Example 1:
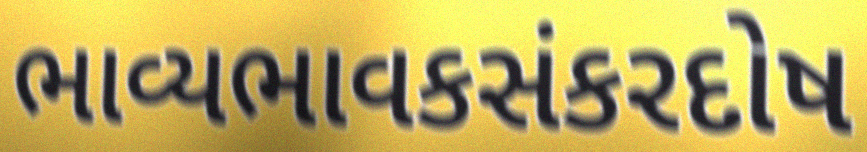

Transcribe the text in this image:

ભાવ્યભાવકસંકરદોષ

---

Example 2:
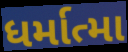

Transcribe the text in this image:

ધર્માત્મા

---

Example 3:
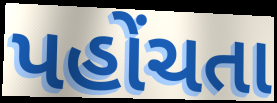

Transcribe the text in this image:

પહોંચતા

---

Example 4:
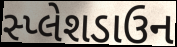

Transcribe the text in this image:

સ્પ્લેશડાઉન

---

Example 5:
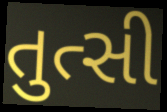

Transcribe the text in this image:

તુત્સી